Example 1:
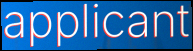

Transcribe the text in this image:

applicant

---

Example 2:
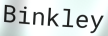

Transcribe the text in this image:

Binkley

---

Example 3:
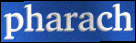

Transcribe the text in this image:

pharach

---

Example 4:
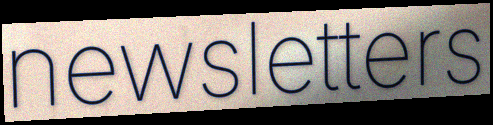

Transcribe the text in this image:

newsletters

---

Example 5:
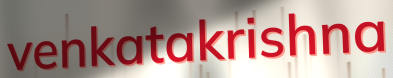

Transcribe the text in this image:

venkatakrishna